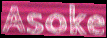
Asoke